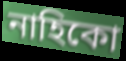
নাহিকো